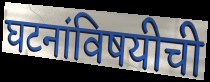
घटनांविषयीची